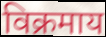
विक्रमाय